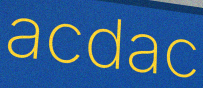
acdac